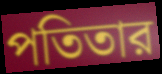
পতিতার